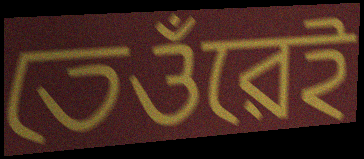
তেওঁৱেই